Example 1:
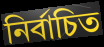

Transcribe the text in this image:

নিৰ্বাচিত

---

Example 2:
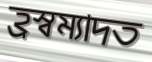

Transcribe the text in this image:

হ্ৰস্বম্যাদত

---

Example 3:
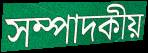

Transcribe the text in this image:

সম্পাদকীয়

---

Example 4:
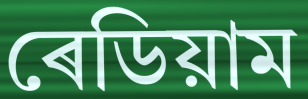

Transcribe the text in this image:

ৰেডিয়াম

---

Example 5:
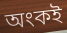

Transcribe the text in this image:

অংকই